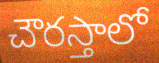
చౌరస్తాలో